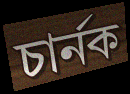
চার্নক